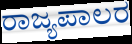
ರಾಜ್ಯಪಾಲರ